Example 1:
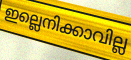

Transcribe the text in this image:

ഇല്ലെനിക്കാവില്ല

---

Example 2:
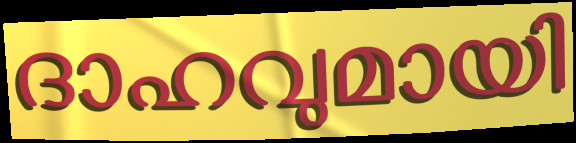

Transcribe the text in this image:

ദാഹവുമായി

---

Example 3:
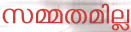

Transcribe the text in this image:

സമ്മതമില്ല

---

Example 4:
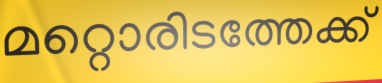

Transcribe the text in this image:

മറ്റൊരിടത്തേക്ക്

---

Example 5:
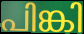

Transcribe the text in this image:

പിങ്കി